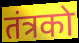
तंत्रको